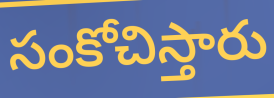
సంకోచిస్తారు